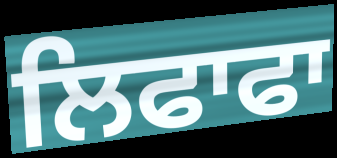
ਲਿਫਾਫਾ